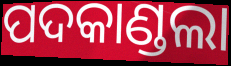
ପଦକାଣ୍ଡଲା